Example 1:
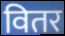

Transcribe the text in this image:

वितर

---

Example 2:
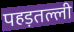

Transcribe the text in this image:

पहड़तल्ली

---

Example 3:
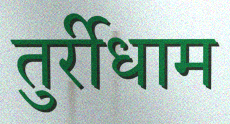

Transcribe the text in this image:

तुर्रीधाम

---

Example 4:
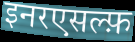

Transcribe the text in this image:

इनरएसल्फ़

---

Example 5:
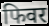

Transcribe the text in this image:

फिवर